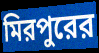
মিরপুরের